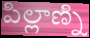
పిల్లాణ్ని